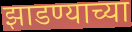
झाडण्याच्या